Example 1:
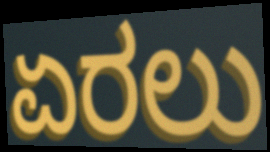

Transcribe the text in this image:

ಏರಲು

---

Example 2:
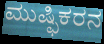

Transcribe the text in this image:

ಮುಷ್ಫಿಕರನ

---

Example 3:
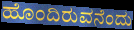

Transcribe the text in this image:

ಹೊಂದಿರುವನೆಂದು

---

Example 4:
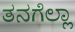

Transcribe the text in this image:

ತನಗೆಲ್ಲಾ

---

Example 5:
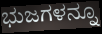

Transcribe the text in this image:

ಭುಜಗಳನ್ನೂ